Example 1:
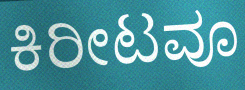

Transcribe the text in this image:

ಕಿರೀಟವೂ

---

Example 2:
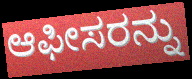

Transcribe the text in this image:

ಆಫೀಸರನ್ನು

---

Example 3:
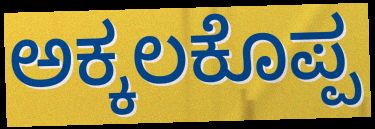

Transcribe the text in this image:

ಅಕ್ಕಲಕೊಪ್ಪ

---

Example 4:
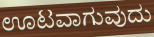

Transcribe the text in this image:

ಊಟವಾಗುವುದು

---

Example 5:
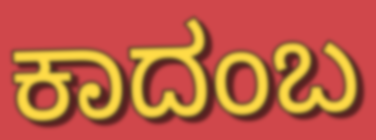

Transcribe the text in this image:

ಕಾದಂಬ